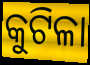
କୁଟିଳା